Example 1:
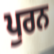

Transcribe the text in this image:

ਪੁਰਨ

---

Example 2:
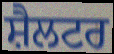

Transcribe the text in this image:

ਸ਼ੈਲਟਰ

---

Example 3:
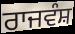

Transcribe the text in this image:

ਰਾਜਵੰਸ਼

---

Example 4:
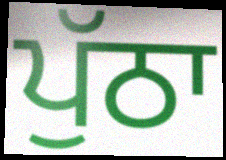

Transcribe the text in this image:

ਪੁੱਠਾ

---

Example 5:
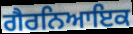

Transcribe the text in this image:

ਗੈਰਨਿਆਇਕ